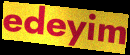
edeyim